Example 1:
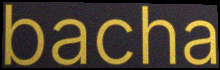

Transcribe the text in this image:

bacha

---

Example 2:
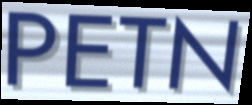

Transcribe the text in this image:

PETN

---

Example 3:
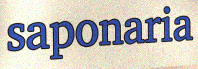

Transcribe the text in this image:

saponaria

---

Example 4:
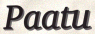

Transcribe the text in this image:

Paatu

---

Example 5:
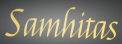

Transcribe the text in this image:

Samhitas